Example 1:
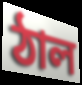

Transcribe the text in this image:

ঠাল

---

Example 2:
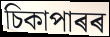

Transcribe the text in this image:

চিকাপাৰৰ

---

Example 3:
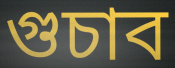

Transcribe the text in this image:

গুচাব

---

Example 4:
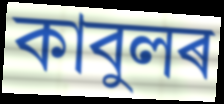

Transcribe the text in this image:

কাবুলৰ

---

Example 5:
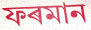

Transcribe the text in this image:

ফৰমান